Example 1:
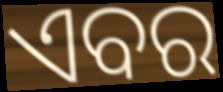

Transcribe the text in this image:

ଏବର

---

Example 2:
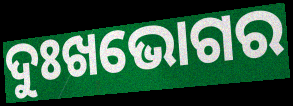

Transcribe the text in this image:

ଦୁଃଖଭୋଗର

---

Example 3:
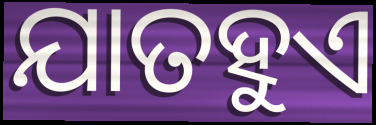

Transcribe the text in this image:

ଯାତହୁଏ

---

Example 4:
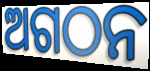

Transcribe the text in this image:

ଅଗଠନ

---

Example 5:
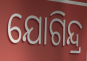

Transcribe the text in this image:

ଯୋଗିନ୍ଦ୍ର